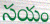
సయం